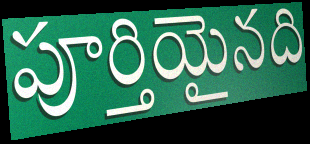
పూర్తియైనది